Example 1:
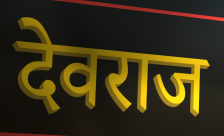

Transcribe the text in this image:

देवराज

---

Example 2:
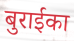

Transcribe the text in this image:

बुराईका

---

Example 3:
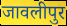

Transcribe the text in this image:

जावलीपुर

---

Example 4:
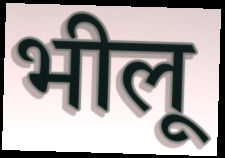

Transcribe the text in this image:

भीलू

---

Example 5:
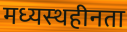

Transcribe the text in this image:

मध्यस्थहीनता